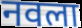
नवला